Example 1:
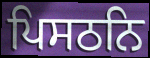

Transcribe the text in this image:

ਪਿਸਠਨਿ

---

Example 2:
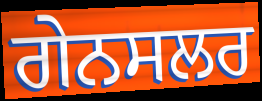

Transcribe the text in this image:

ਗੇਨਸਲਰ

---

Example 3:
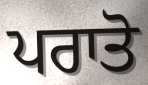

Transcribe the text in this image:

ਪਰਾਤੋ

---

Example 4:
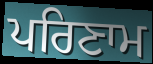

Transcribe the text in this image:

ਪਰਿਣਾਮ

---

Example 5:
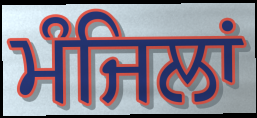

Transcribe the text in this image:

ਮੰਜਿਲਾਂ